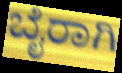
ಬೈರಾಗಿ